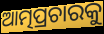
ଆତ୍ମପ୍ରଚାରକୁ